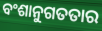
ବଂଶାନୁଗତତାର